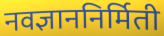
नवज्ञाननिर्मिती